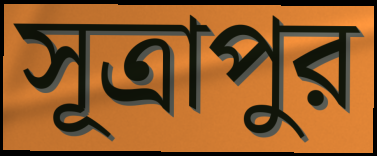
সূত্রাপুর